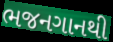
ભજનગાનથી